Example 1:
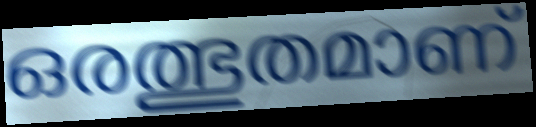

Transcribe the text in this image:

ഒരത്ഭുതമാണ്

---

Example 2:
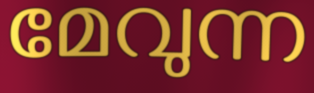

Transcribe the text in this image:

മേവുന്ന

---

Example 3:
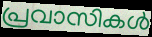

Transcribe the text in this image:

പ്രവാസികൾ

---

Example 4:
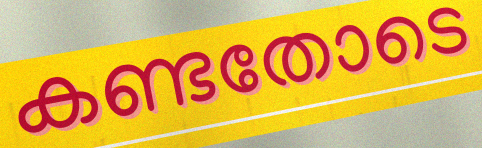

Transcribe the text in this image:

കണ്ടതോടെ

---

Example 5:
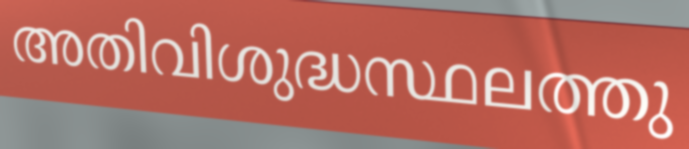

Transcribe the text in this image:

അതിവിശുദ്ധസ്ഥലത്തു